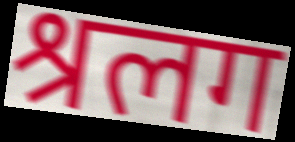
श्रलग